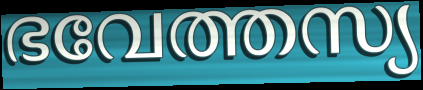
ഭവേത്തസ്യ